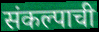
संकल्पाची